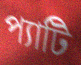
প্যাটি